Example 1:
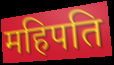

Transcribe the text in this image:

महिपति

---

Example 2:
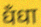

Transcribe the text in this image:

धँधा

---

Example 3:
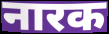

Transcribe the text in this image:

नारक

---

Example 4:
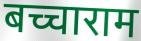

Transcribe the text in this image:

बच्चाराम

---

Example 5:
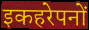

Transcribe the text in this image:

इकहरेपनों